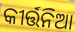
କୀର୍ତ୍ତନିଆ